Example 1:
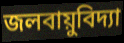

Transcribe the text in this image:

জলবায়ুবিদ্যা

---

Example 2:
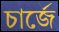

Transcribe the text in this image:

চার্জে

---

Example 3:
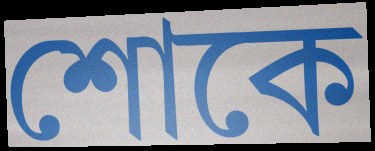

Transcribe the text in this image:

শোকে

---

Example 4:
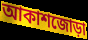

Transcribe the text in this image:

আকাশজোড়া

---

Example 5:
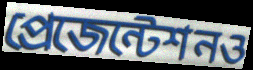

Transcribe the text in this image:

প্রেজেন্টেশনও